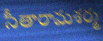
సీతారామశర్మ